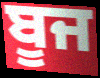
ਬੂਜ